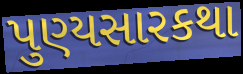
પુણ્યસારકથા